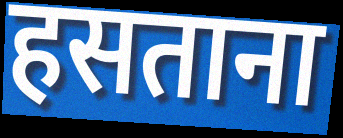
हसताना